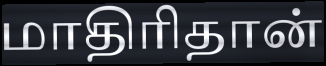
மாதிரிதான்